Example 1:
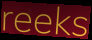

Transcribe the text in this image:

reeks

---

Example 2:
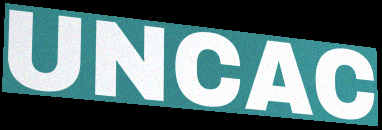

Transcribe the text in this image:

UNCAC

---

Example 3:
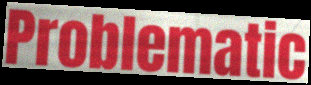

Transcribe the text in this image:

Problematic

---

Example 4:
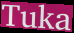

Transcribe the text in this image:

Tuka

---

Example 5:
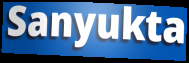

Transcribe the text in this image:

Sanyukta